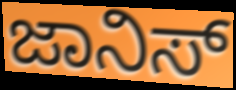
ಜಾನಿಸ್